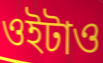
ওইটাও